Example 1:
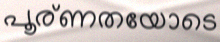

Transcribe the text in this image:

പൂര്ണതയോടെ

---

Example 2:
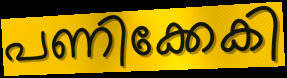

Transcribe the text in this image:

പണിക്കേകി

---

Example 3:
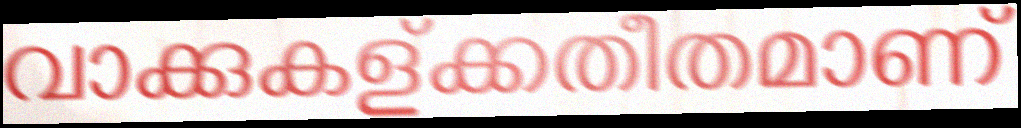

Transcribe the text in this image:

വാക്കുകള്ക്കതീതമാണ്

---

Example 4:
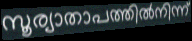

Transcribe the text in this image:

സൂര്യാതാപത്തിൽനിന്ന്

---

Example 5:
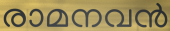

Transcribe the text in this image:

രാമനവൻ